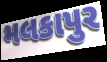
મલકાપુર